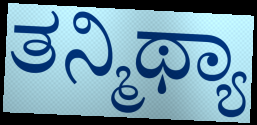
ತನ್ಮಿಥ್ಯಾ